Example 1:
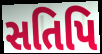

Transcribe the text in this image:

સતિપિ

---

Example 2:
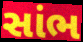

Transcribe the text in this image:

સાંભ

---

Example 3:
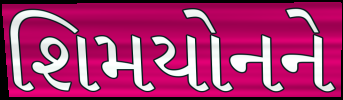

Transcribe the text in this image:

શિમયોનને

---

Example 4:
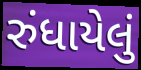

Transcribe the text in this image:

રુંધાયેલું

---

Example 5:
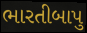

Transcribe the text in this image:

ભારતીબાપુ